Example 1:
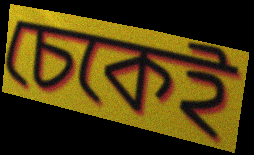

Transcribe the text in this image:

চেকেই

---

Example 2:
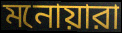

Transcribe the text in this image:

মনোয়ারা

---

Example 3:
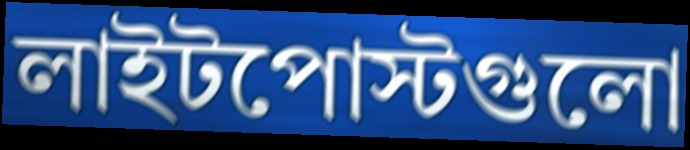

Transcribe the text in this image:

লাইটপোস্টগুলো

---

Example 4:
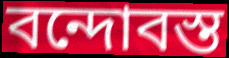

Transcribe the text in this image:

বন্দোবস্ত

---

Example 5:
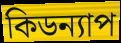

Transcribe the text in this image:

কিডন্যাপ